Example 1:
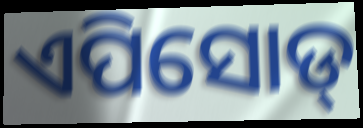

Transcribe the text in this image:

ଏପିସୋଡ୍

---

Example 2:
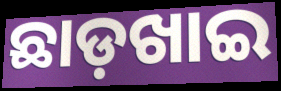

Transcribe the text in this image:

ଛାଡ଼ଖାଇ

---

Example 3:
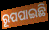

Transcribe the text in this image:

ରୂପପାଇଛି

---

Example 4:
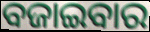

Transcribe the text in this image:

ବଜାଇବାର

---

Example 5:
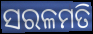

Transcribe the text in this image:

ସରଳମତି